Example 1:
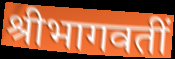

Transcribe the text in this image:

श्रीभागवतीं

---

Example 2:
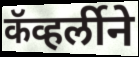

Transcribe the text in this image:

कॅव्हर्लीने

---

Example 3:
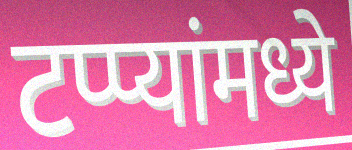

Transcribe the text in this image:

टप्प्यांमध्ये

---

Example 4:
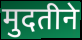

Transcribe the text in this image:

मुदतीने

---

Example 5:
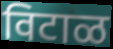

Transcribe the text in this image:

विटाळ